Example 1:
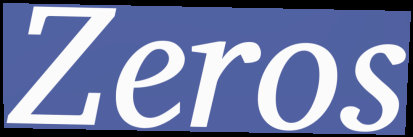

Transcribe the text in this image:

Zeros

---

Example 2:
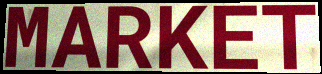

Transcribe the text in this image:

MARKET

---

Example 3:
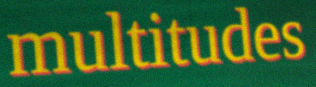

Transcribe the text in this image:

multitudes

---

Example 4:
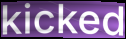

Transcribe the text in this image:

kicked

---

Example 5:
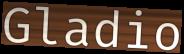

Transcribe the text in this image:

Gladio